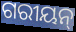
ଗରୀୟନ୍